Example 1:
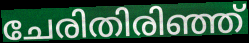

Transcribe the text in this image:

ചേരിതിരിഞ്ഞ്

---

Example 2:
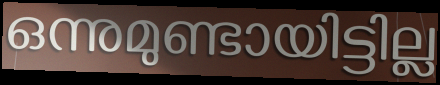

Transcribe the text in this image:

ഒന്നുമുണ്ടായിട്ടില്ല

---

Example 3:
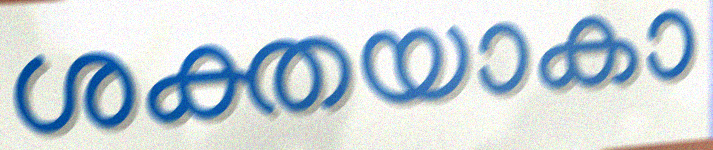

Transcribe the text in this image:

ശക്തയാകാ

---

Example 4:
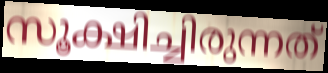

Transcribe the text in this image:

സൂക്ഷിച്ചിരുന്നത്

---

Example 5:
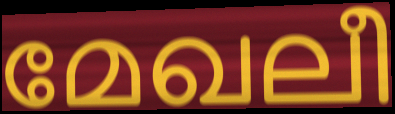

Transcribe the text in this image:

മേഖലീ